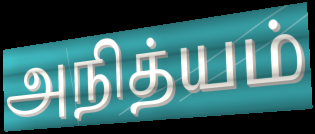
அநித்யம்